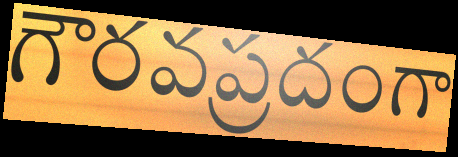
గౌరవప్రదంగా